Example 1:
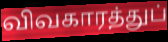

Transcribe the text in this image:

விவகாரத்துப்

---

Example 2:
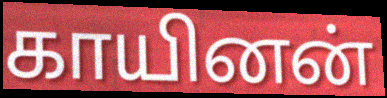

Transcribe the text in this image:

காயினன்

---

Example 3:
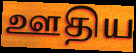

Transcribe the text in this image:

ஊதிய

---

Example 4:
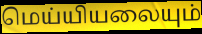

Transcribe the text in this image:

மெய்யியலையும்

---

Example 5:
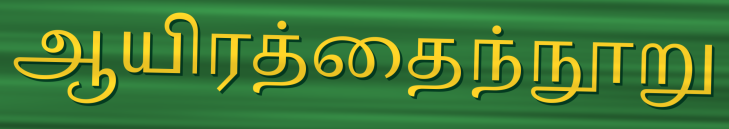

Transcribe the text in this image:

ஆயிரத்தைந்நூறு